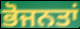
ਭੋਜਨਤਾਂ